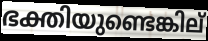
ഭക്തിയുണ്ടെങ്കില്